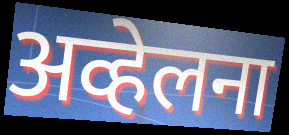
अव्हेलना